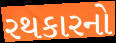
રથકારનો